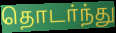
தொடர்ந்து